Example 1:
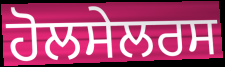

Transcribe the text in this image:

ਹੋਲਸੇਲਰਸ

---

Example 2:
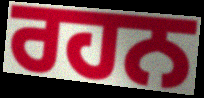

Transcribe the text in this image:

ਰਹਨ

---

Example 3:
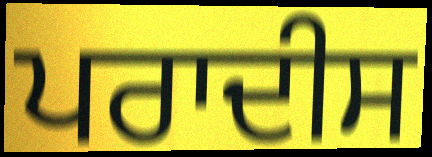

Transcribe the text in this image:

ਪਰਾਦੀਸ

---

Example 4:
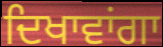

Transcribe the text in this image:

ਦਿਖਾਵਾਂਗਾ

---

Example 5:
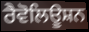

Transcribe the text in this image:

ਰੈਵੋਲਿਊਸ਼ਨ